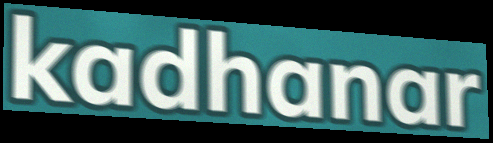
kadhanar